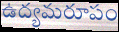
ఉద్యమరూపం